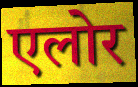
एलोर